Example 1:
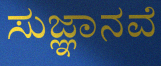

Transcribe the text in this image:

ಸುಜ್ಞಾನವೆ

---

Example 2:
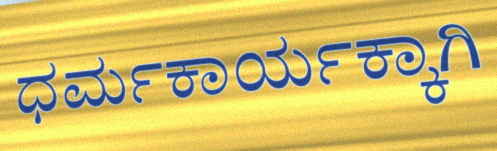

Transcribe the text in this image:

ಧರ್ಮಕಾರ್ಯಕ್ಕಾಗಿ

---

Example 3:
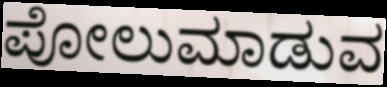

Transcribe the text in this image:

ಪೋಲುಮಾಡುವ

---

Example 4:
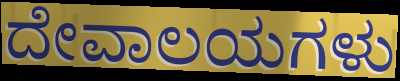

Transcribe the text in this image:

ದೇವಾಲಯಗಳು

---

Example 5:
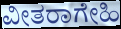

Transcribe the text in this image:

ವೀತರಾಗೇಹಿ